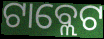
ଟାବ୍ଲେଟ